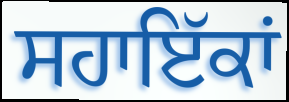
ਸਹਾਇੱਕਾਂ